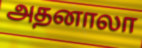
அதனாலா